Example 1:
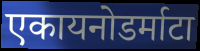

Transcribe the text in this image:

एकायनोडर्माटा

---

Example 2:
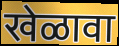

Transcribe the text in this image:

खेळावा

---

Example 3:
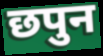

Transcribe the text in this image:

छपुन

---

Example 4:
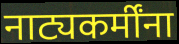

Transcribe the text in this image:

नाट्यकर्मींना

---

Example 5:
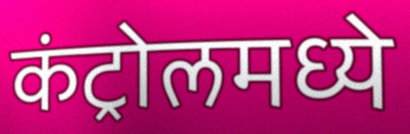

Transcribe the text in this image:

कंट्रोलमध्ये